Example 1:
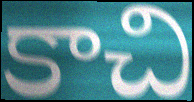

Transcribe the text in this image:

కాచి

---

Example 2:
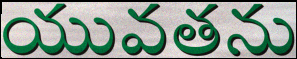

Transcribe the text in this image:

యువతను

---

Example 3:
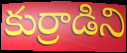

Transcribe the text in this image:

కుర్రాడిని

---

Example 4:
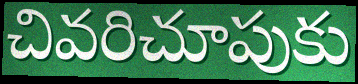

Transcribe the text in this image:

చివరిచూపుకు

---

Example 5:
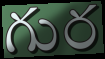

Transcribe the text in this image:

గుర